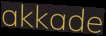
akkade